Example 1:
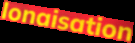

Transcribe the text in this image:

Ionaisation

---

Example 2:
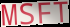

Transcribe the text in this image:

MSFT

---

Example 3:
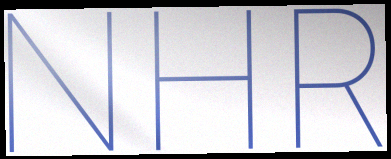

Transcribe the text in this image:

NHR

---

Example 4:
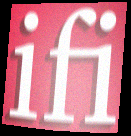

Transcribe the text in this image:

ifi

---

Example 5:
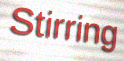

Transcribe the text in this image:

Stirring